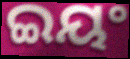
ଇୟଂ